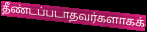
தீண்டப்படாதவர்களாகக்